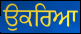
ਉਕਰਿਆ